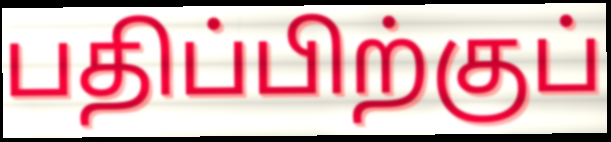
பதிப்பிற்குப்